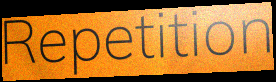
Repetition